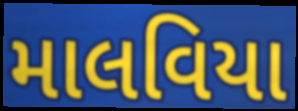
માલવિયા